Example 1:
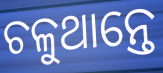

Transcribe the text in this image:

ଚଳୁଥାନ୍ତେ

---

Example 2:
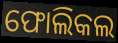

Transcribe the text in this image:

ଫୋଲିକଲ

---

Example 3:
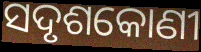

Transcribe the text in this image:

ସଦୃଶକୋଣୀ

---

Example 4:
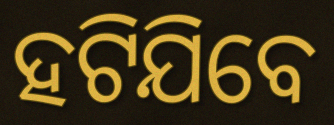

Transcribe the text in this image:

ହଟିଯିବେ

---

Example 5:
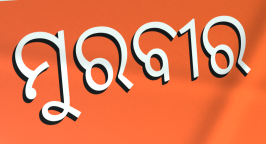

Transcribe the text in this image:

ମୁରବୀର